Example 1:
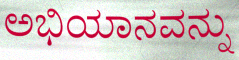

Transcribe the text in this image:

ಅಭಿಯಾನವನ್ನು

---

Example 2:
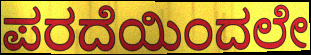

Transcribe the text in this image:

ಪರದೆಯಿಂದಲೇ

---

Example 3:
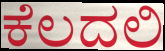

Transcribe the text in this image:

ಕೆಲದಲಿ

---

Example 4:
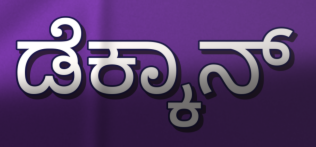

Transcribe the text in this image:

ಡೆಕ್ಕಾನ್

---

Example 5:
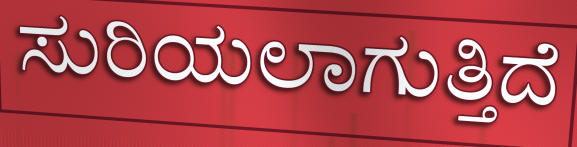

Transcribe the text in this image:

ಸುರಿಯಲಾಗುತ್ತಿದೆ